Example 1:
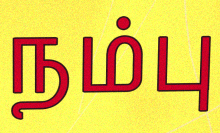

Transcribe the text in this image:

நம்பு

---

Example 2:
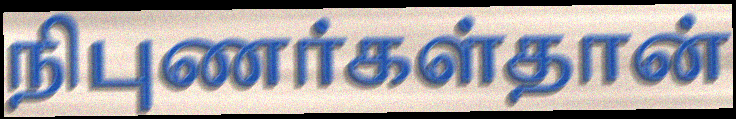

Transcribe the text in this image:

நிபுணர்கள்தான்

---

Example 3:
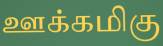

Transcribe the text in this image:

ஊக்கமிகு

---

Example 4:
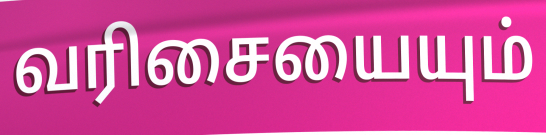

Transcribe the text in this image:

வரிசையையும்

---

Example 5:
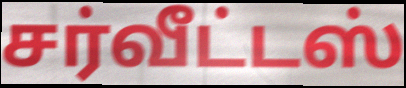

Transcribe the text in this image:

சர்வீட்டஸ்